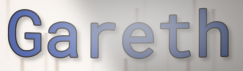
Gareth